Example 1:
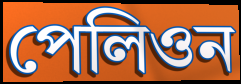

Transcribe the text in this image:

পেলিওন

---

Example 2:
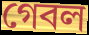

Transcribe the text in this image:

গেবল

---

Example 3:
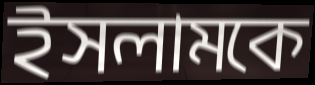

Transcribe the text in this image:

ইসলামকে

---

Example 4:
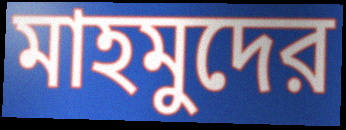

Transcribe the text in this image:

মাহমুদের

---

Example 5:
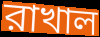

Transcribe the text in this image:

রাখাল